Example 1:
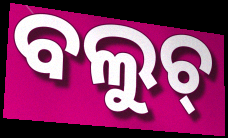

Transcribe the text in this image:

ବଲୁଚ୍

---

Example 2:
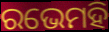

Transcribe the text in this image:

ରଭେମହି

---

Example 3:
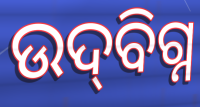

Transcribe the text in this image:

ଉଦ୍‌ବିଗ୍ନ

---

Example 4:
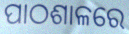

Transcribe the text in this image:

ପାଠଶାଳରେ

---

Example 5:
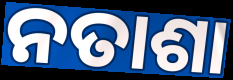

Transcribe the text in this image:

ନତାଶା